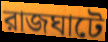
রাজঘাটে